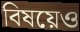
বিষয়েও